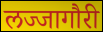
लज्जागौरी